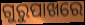
ଗୁରୁପାଖରେ